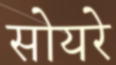
सोयरे